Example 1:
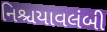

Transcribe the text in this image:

નિશ્ચયાવલંબી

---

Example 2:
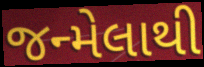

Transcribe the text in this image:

જન્મેલાથી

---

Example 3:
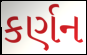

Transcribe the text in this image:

કર્ણન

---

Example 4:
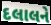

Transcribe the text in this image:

દલાલને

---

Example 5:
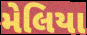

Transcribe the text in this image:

મેલિયા